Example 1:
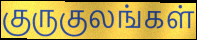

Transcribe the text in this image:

குருகுலங்கள்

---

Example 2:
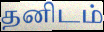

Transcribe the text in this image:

தனிடம்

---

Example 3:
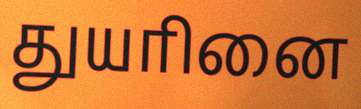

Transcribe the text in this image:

துயரினை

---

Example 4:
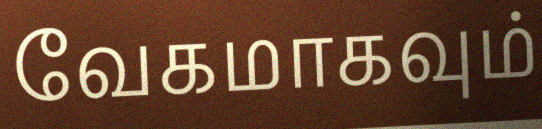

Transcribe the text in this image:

வேகமாகவும்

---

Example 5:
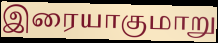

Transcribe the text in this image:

இரையாகுமாறு